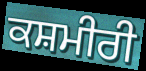
ਕਸ਼ਮੀਰੀ